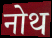
नोथ